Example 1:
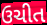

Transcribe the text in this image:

ઉચીત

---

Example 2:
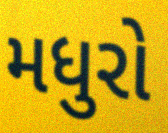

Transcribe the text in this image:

મધુરો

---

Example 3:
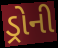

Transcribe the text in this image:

ડ્રોની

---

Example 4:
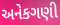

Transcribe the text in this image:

અનેકગણી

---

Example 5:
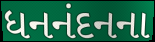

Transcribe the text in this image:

ધનનંદનના